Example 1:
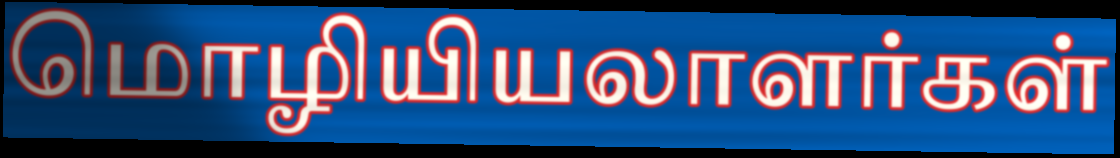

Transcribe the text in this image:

மொழியியலாளர்கள்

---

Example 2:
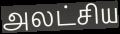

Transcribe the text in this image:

அலட்சிய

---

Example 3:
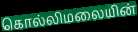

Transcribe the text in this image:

கொல்லிமலையின்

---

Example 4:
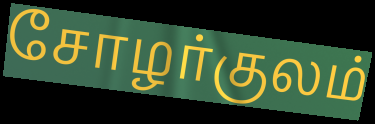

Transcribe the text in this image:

சோழர்குலம்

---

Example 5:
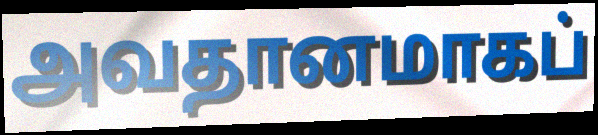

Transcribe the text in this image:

அவதானமாகப்